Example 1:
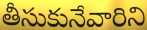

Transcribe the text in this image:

తీసుకునేవారిని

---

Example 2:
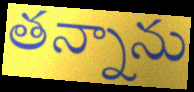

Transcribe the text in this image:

తన్నాను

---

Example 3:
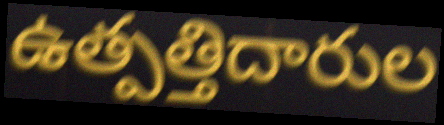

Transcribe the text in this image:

ఉత్పత్తిదారుల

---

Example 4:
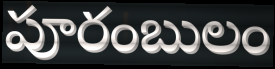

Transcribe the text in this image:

పూరంబులం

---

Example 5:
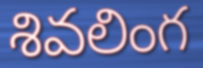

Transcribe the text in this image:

శివలింగ